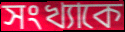
সংখ্যাকে